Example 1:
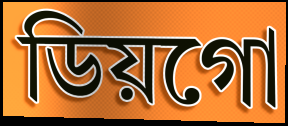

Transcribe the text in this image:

ডিয়গো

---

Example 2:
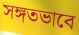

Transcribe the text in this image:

সঙ্গতভাবে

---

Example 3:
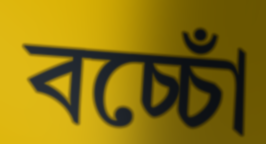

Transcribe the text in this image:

বচ্চোঁ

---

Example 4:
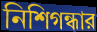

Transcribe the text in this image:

নিশিগন্ধার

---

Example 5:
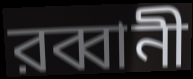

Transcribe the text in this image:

রব্বানী